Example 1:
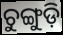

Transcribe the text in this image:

ଚୁଙ୍ଗୁଡ଼ି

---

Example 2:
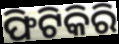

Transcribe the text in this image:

ଫିଟିକିରି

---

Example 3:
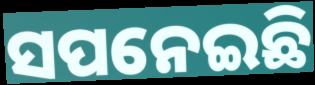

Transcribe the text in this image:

ସପନେଇଛି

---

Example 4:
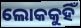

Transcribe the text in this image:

ଲୋକକୁହିଁ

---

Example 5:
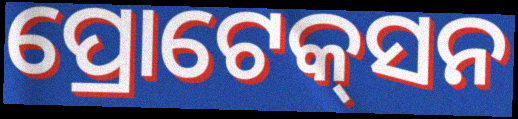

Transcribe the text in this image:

ପ୍ରୋଟେକ୍‌ସନ